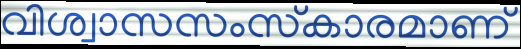
വിശ്വാസസംസ്‌കാരമാണ്